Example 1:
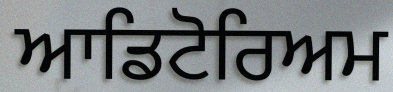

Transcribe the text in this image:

ਆਡਿਟੋਰਿਅਮ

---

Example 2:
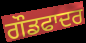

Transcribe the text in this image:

ਗੌਡਫਾਦਰ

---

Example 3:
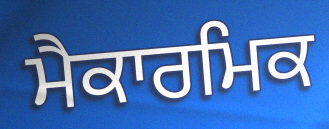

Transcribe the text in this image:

ਮੈਕਾਰਮਿਕ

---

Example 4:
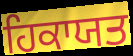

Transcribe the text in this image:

ਹਿਕਾਯਤ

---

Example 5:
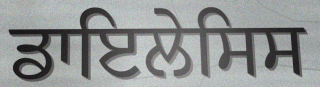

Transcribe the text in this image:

ਡਾਇਲੇਸਿਸ